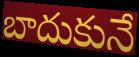
బాదుకునే